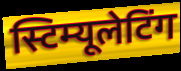
स्टिम्यूलेटिंग